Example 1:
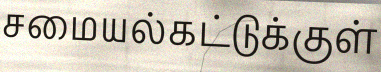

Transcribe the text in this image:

சமையல்கட்டுக்குள்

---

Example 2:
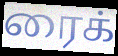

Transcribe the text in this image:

ரைக்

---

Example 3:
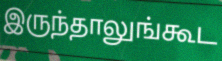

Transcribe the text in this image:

இருந்தாலுங்கூட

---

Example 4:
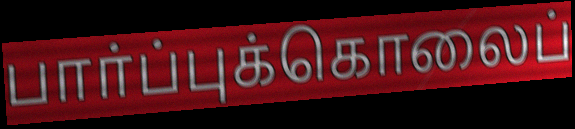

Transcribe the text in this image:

பார்ப்புக்கொலைப்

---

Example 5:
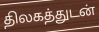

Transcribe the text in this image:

திலகத்துடன்